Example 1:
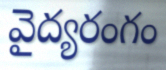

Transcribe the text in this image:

వైద్యరంగం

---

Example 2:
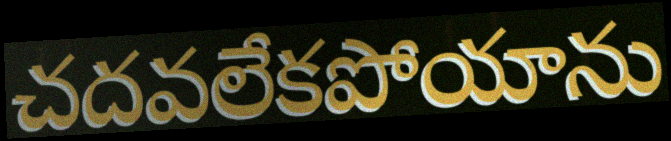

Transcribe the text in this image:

చదవలేకపోయాను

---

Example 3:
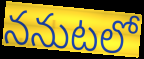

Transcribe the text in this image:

ననుటలో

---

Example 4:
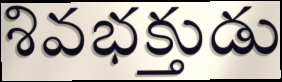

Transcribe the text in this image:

శివభక్తుడు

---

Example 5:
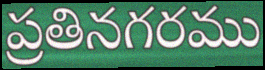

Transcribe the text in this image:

ప్రతినగరము